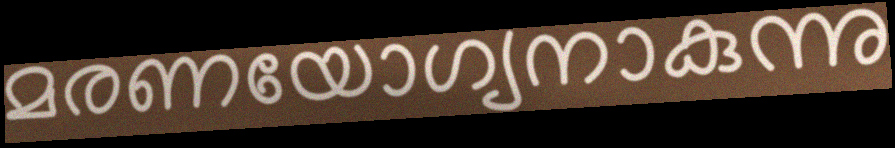
മരണയോഗ്യനാകുന്നു